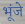
भूंजे